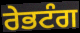
ਰੇਭਟੰਗ